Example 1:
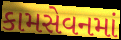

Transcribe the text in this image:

કામસેવનમાં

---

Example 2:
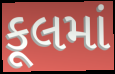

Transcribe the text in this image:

કૂલમાં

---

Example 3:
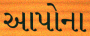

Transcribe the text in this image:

આપોના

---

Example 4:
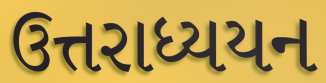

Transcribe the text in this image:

ઉત્તરાધ્યયન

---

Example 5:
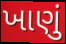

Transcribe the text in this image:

ખાણું